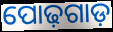
ପୋଢ଼ଗାଡ଼